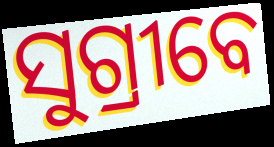
ସୁଗ୍ରୀବେ